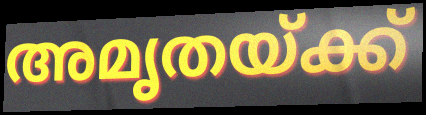
അമൃതയ്ക്ക്